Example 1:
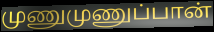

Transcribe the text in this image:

முணுமுணுப்பான்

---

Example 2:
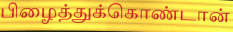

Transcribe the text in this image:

பிழைத்துக்கொண்டான்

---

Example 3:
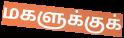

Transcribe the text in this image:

மகளுக்குக்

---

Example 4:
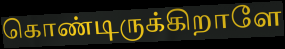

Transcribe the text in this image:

கொண்டிருக்கிறாளே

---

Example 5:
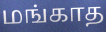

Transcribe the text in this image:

மங்காத